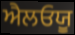
ਐਲਓਯੂ